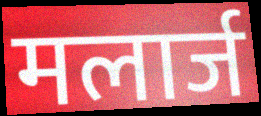
मलार्ज